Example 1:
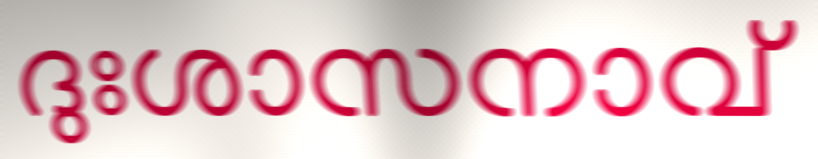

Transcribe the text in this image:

ദുഃശാസനാവ്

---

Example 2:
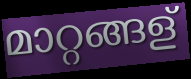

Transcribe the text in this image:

മാറ്റങ്ങള്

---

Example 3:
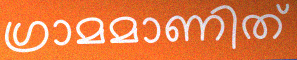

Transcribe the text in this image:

ഗ്രാമമാണിത്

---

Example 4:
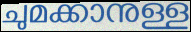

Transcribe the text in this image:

ചുമക്കാനുള്ള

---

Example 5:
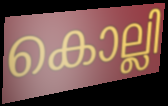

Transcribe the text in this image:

കൊല്ലി